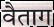
वैताग